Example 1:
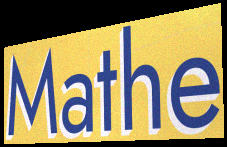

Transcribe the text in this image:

Mathe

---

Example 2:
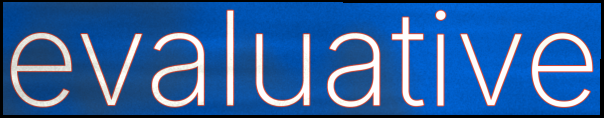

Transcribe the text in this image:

evaluative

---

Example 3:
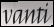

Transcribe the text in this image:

vanti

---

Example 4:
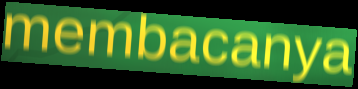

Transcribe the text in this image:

membacanya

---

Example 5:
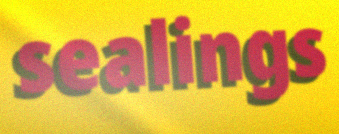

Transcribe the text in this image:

sealings